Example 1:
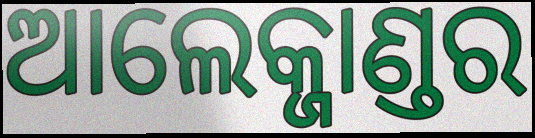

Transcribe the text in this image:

ଆଲେକ୍ଜାଣ୍ଡର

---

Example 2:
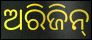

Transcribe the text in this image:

ଅରିଜିନ୍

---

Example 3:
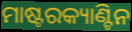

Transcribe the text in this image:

ମାଷ୍ଟରକ୍ୟାଣ୍ଟିନ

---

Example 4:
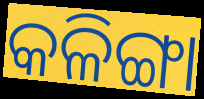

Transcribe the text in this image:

କଳିଙ୍ଗା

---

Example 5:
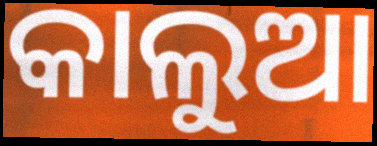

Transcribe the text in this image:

କାଲୁଆ